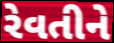
રેવતીને